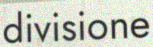
divisione